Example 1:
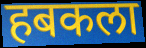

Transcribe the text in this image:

हबकला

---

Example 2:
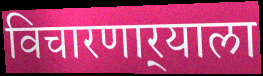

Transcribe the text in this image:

विचारणार्याला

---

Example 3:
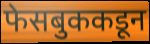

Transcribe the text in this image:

फेसबुककडून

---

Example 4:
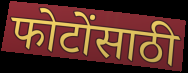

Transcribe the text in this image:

फोटोंसाठी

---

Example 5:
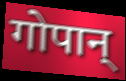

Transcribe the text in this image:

गोपान्